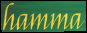
hamma